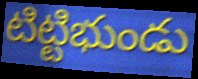
టిట్టిభుండు